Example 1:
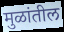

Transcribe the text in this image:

मुळांतील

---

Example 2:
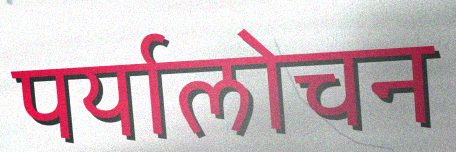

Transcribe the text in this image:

पर्यालोचन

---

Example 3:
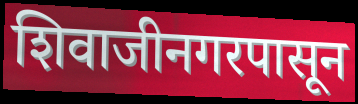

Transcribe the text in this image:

शिवाजीनगरपासून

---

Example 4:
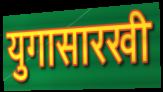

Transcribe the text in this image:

युगासारखी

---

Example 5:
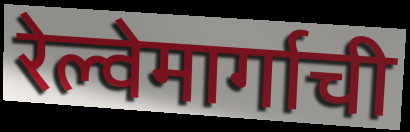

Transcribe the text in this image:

रेल्वेमार्गाची